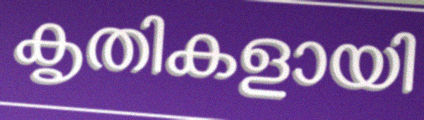
കൃതികളായി